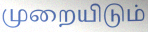
முறையிடும்